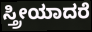
ಸ್ತ್ರೀಯಾದರೆ